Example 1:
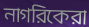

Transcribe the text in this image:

নাগরিকেরা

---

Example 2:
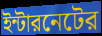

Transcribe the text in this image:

ইন্টারনেটের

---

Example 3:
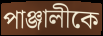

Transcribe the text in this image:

পাঞ্জালীকে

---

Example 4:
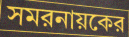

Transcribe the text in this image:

সমরনায়কের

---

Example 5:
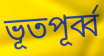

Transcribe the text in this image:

ভূতপূর্ব্ব